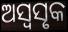
ଅସ୍ୱସୃକ